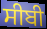
ਸੀਬੀ